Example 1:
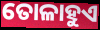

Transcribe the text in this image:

ତୋଳାହୁଏ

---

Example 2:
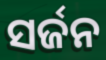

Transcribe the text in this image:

ସର୍ଜନ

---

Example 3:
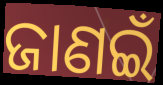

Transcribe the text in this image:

ଜାଣଇଁ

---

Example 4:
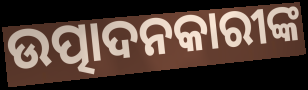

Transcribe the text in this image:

ଉତ୍ପାଦନକାରୀଙ୍କ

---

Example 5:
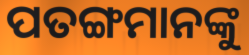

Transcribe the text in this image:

ପତଙ୍ଗମାନଙ୍କୁ